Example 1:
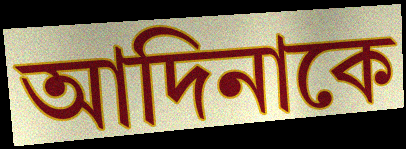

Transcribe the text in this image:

আদিনাকে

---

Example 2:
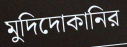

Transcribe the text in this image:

মুদিদোকানির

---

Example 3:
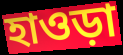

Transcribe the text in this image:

হাওড়া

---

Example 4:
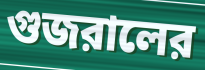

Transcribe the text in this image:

গুজরালের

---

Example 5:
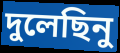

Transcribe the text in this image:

দুলেছিনু